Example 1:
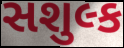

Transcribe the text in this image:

સશુલ્ક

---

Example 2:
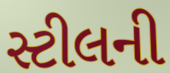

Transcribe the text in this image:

સ્ટીલની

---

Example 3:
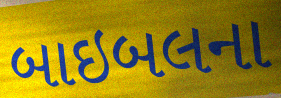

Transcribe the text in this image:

બાઇબલના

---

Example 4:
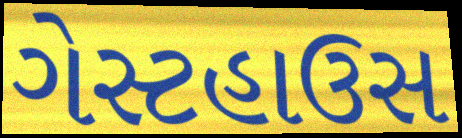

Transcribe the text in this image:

ગેસ્ટહાઉસ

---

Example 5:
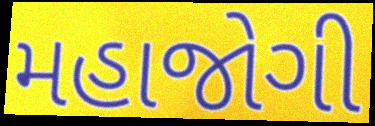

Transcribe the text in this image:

મહાજોગી